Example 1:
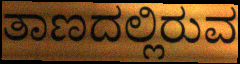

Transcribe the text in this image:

ತಾಣದಲ್ಲಿರುವ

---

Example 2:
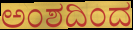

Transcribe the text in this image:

ಅಂಶದಿಂದ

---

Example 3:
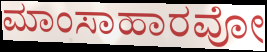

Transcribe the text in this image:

ಮಾಂಸಾಹಾರವೋ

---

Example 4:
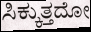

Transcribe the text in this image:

ಸಿಕ್ಕುತ್ತದೋ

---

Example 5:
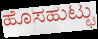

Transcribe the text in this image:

ಹೊಸಹುಟ್ಟು